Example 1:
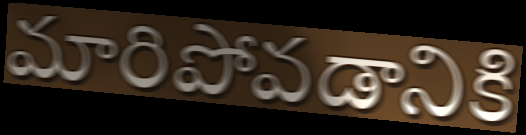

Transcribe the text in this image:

మారిపోవడానికి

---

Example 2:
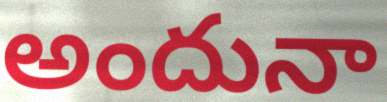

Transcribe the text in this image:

అందునా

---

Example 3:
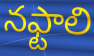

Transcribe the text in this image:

నఫ్టాలి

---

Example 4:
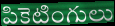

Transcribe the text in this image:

పికెటింగులు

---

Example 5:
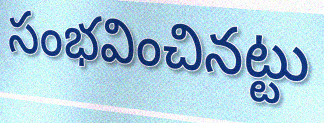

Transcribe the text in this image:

సంభవించినట్టు